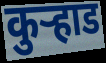
कुर्‍हाड